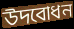
উদবোধন